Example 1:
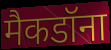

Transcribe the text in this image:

मैकडॉना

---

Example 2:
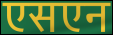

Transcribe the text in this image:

एसएन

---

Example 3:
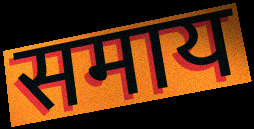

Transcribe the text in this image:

समाय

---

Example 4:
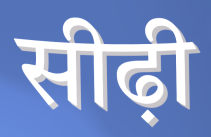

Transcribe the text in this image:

सीढ़ी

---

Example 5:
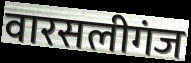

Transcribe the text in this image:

वारसलीगंज